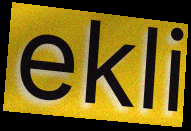
ekli